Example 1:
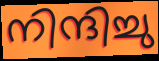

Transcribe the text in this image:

നിന്ദിച്ചു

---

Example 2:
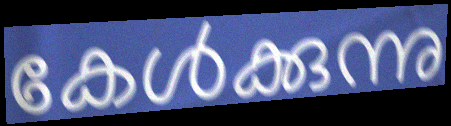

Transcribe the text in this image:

കേൾക്കുന്നു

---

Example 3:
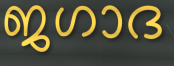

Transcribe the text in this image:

ജഗാദ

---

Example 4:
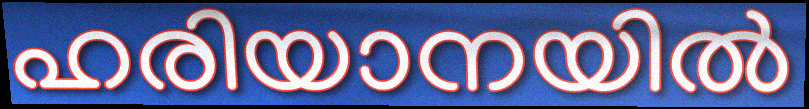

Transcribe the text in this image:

ഹരിയാനയിൽ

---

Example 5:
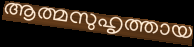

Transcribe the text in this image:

ആത്മസുഹൃത്തായ